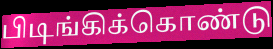
பிடிங்கிக்கொண்டு